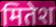
मितेश